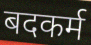
बदकर्म